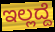
ಇಲ್ಲದ್ದೆ